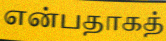
என்பதாகத்